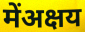
मेंअक्षय